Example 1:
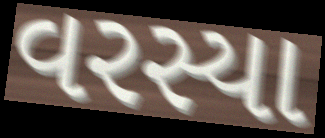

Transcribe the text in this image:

વરસ્યા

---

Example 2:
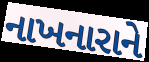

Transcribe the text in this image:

નાખનારાને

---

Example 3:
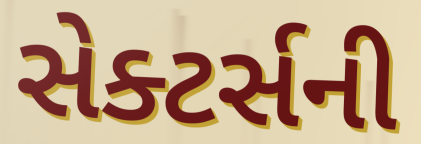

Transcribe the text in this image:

સેક્ટર્સની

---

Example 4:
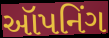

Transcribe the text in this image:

ઑપનિંગ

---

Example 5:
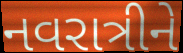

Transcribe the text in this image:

નવરાત્રીને